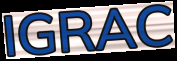
IGRAC